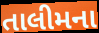
તાલીમના